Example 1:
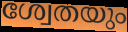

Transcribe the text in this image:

ശ്വേതയും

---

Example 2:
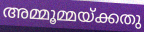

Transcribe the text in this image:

അമ്മൂമ്മയ്ക്കതു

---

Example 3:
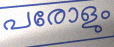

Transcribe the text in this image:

പരോളും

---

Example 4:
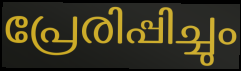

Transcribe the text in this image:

പ്രേരിപ്പിച്ചും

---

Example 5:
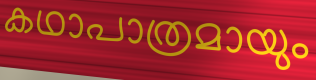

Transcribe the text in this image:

കഥാപാത്രമായും